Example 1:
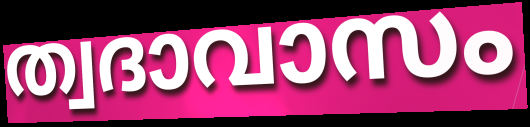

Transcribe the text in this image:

ത്വദാവാസം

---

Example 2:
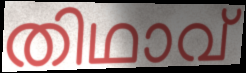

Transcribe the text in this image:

തിഥാവ്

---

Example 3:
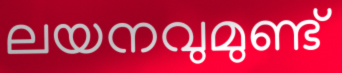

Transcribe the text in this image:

ലയനവുമുണ്ട്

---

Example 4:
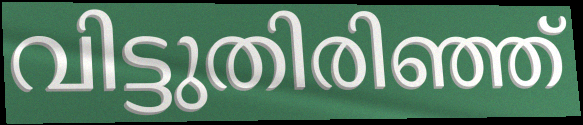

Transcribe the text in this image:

വിട്ടുതിരിഞ്ഞ്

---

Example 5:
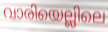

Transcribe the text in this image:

വാരിയെല്ലിലെ